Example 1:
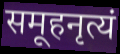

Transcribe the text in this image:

समूहनृत्यं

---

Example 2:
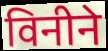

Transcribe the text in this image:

विनीने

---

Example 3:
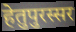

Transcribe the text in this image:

हेतुपुरस्सर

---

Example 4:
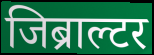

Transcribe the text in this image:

जिब्राल्टर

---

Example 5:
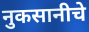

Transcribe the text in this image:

नुकसानीचे